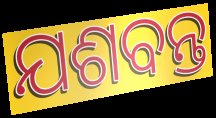
ଯଶବନ୍ତ